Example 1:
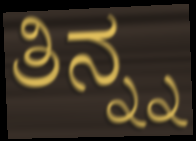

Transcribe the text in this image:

ತಿನ್ನ್ನ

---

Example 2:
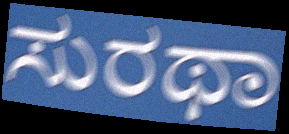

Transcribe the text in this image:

ಸುರಥಾ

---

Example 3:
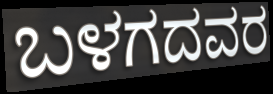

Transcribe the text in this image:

ಬಳಗದವರ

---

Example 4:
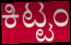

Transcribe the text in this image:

ಕಿಟ್ಟಂ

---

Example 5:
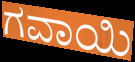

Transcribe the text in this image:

ಗವಾಯಿ